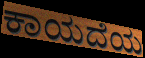
ಕಾಯದೆಯ